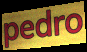
pedro